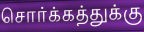
சொர்க்கத்துக்கு